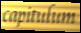
capitulum